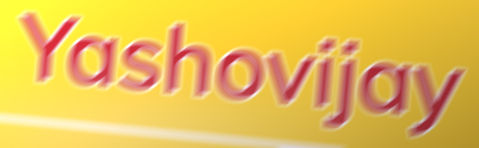
Yashovijay